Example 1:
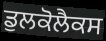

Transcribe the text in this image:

ਡੁਲਕੋਲੈਕਸ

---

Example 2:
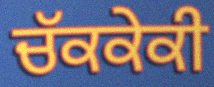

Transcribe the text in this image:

ਚੱਕਕੇਕੀ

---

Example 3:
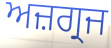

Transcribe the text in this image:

ਅਜ਼ਗ੍ਰਜ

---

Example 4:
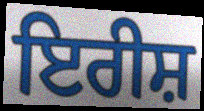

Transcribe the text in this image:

ਇਰੀਸ਼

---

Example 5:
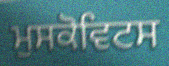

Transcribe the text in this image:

ਮੁਸਕੋਵਿਟਸ